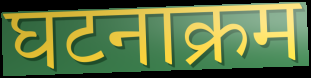
घटनाक्रम